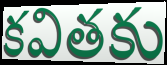
కవితకు